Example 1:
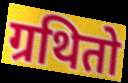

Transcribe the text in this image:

ग्रथितो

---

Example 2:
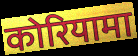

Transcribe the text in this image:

कोरियामा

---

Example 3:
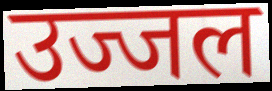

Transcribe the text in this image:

उज्जल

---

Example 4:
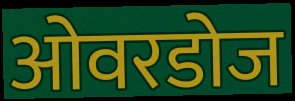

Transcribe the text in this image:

ओवरडोज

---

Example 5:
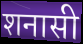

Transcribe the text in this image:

शनासी